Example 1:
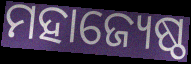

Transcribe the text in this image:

ମହାଜ୍ୟେଷ୍ଠ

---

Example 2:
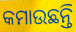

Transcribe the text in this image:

କମାଉଛନ୍ତି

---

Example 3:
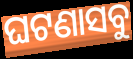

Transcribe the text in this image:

ଘଟଣାସବୁ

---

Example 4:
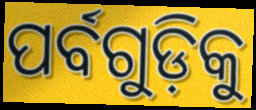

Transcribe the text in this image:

ପର୍ବଗୁଡ଼ିକୁ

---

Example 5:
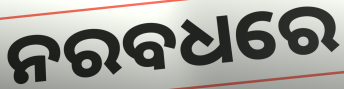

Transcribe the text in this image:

ନରବଧରେ